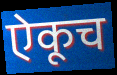
ऐकूच